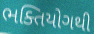
ભક્તિયોગથી